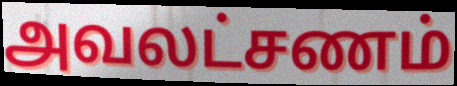
அவலட்சணம்